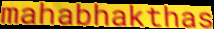
mahabhakthas